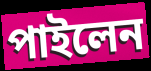
পাইলেন